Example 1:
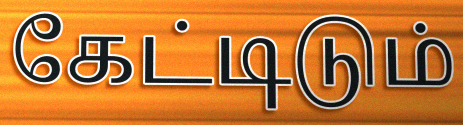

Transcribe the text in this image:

கேட்டிடும்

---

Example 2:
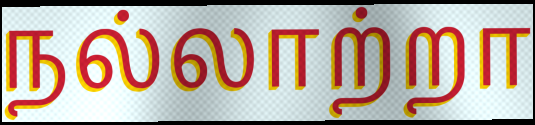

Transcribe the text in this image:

நல்லாற்றா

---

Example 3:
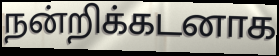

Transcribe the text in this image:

நன்றிக்கடனாக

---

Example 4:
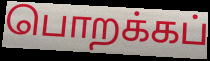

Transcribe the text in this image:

பொறக்கப்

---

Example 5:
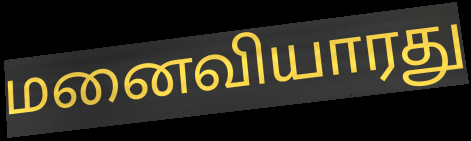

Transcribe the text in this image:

மனைவியாரது